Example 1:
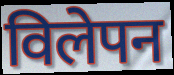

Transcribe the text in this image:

विलेपन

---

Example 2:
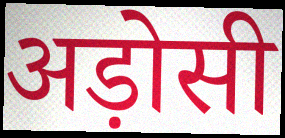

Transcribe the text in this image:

अड़ोसी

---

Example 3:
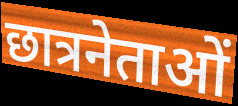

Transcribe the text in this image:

छात्रनेताओं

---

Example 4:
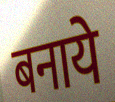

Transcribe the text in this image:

बनाये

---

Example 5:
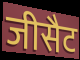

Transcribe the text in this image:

जीसैट